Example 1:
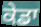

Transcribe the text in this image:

ਕੇਡਾ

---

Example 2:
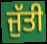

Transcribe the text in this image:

ਜੁੱਤੀ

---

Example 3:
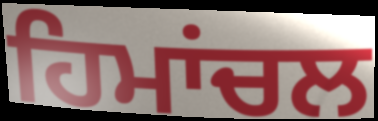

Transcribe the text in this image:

ਹਿਮਾਂਚਲ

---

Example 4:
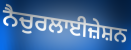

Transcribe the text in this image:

ਨੈਚੁਰਲਾਈਜ਼ੇਸ਼ਨ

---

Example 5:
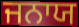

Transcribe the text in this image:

ਜਨਾਯ